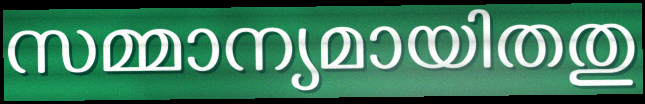
സമ്മാന്യമായിതതു